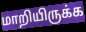
மாறியிருக்க